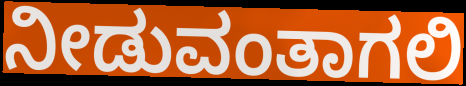
ನೀಡುವಂತಾಗಲಿ